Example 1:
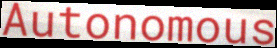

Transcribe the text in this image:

Autonomous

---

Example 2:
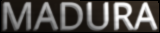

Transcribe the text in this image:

MADURA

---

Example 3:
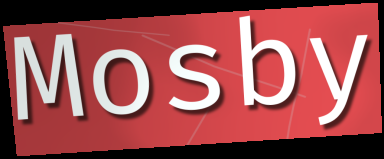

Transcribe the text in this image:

Mosby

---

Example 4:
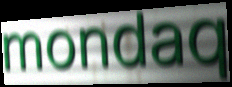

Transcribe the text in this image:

mondaq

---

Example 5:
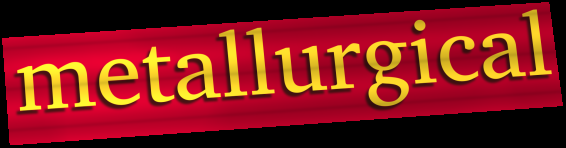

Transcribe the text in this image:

metallurgical